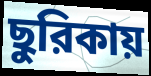
ছুরিকায়